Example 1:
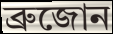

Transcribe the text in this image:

ব্রুজোন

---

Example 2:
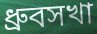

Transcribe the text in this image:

ধ্রুবসখা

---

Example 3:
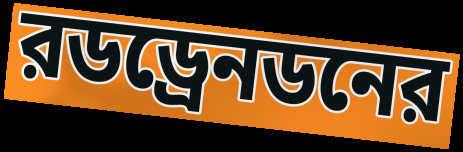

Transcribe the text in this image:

রডড্রেনডনের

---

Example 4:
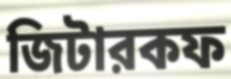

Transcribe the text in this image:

জিটারকফ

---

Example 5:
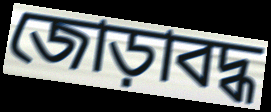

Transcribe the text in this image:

জোড়াবদ্ধ